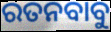
ରତନବାବୁ